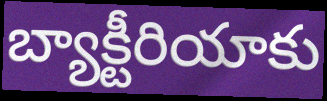
బ్యాక్టీరియాకు